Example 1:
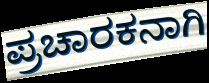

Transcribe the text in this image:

ಪ್ರಚಾರಕನಾಗಿ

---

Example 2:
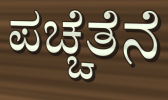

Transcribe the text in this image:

ಪಚ್ಚೆತೆನೆ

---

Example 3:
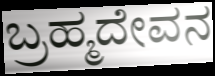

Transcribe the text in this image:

ಬ್ರಹ್ಮದೇವನ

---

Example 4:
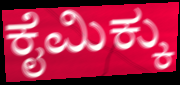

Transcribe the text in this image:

ಕೈಮಿಕ್ಕು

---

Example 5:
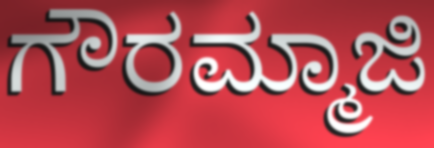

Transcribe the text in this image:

ಗೌರಮ್ಮಾಜಿ